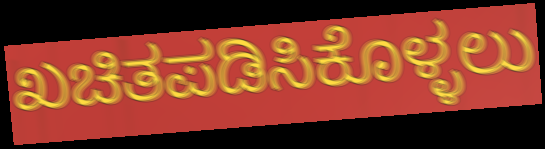
ಖಚಿತಪಡಿಸಿಕೊಳ್ಳಲು